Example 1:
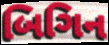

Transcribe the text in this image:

બિગિન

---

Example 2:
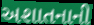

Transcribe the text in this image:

અશાતનાની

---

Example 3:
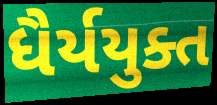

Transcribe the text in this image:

ધૈર્યયુક્ત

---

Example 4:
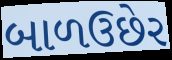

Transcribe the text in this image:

બાળઉછેર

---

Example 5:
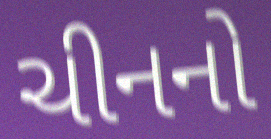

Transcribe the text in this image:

ચીનનો